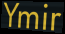
Ymir